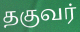
தகுவர்